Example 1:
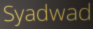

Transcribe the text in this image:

Syadwad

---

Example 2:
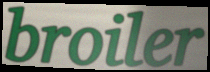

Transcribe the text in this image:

broiler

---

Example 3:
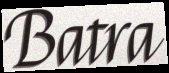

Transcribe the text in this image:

Batra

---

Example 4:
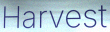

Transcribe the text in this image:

Harvest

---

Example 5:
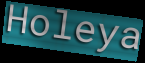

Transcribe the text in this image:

Holeya